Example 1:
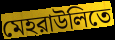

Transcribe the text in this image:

মেহরাউলিতে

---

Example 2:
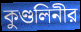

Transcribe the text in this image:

কুণ্ডলিনীর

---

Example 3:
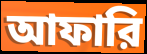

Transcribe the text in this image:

আফারি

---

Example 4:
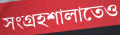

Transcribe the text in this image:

সংগ্রহশালাতেও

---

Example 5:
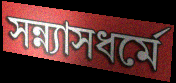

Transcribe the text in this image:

সন্ন্যাসধর্মে